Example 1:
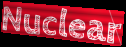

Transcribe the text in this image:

Nuclear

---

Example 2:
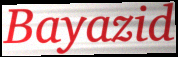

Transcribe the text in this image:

Bayazid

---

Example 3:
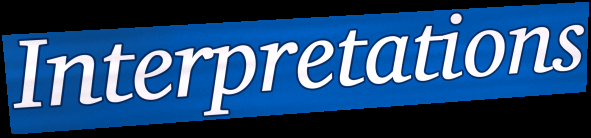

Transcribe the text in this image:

Interpretations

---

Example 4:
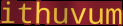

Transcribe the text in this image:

ithuvum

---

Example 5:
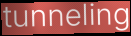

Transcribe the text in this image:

tunneling